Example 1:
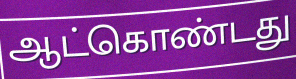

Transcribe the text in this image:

ஆட்கொண்டது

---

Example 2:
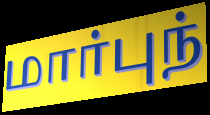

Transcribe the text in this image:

மார்புந்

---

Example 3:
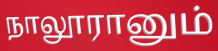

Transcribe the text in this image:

நாலூரானும்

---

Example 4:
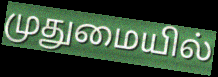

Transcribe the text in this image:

முதுமையில்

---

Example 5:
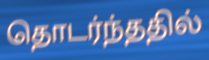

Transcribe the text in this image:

தொடர்ந்ததில்